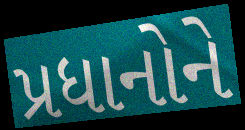
પ્રધાનોને